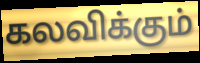
கலவிக்கும்